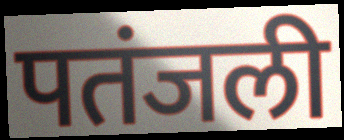
पतंजली